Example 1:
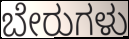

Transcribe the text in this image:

ಬೇರುಗಳು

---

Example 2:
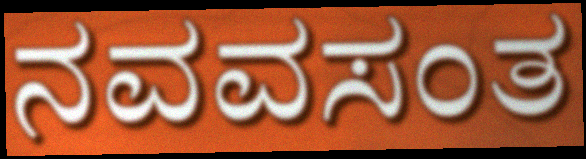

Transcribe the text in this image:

ನವವಸಂತ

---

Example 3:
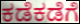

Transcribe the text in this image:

ಕಡೆಕಡೆಗೆ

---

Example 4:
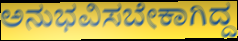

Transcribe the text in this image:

ಅನುಭವಿಸಬೇಕಾಗಿದ್ದ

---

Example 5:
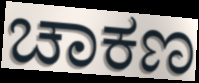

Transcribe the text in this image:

ಚಾಕಣ